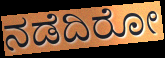
ನಡೆದಿರೋ